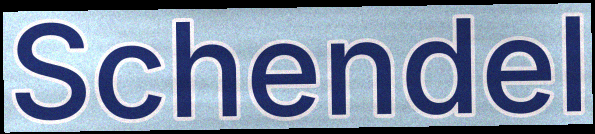
Schendel